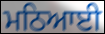
ਮਠਿਆਈ